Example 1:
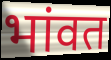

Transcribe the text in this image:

भांवत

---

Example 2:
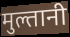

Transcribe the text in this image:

मुल्‍तानी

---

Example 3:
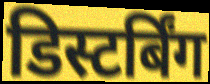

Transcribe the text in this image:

डिस्टर्बिंग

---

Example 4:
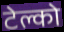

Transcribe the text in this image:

टेल्को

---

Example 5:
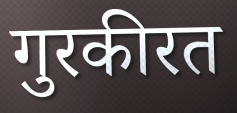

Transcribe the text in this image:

गुरकीरत